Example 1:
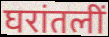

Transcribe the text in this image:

घरांतलीं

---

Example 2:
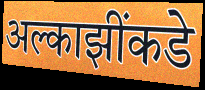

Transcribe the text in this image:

अल्काझींकडे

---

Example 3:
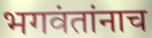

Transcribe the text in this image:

भगवंतांनाच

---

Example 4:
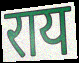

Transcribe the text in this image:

राय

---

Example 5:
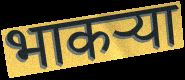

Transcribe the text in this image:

भाकर्‍या